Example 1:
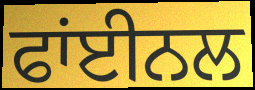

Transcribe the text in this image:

ਫਾਂਈਨਲ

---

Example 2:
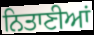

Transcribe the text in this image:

ਨਿਤਾਣੀਆਂ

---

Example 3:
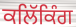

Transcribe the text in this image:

ਕਲਿੱਕਿੰਗ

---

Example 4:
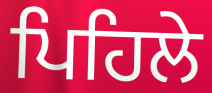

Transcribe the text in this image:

ਪਿਹਿਲੇ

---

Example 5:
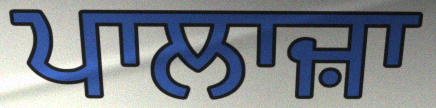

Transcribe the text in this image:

ਪਾਲਾਜ਼ਾ